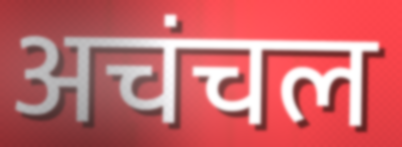
अचंचल